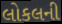
લોકલની